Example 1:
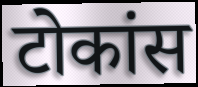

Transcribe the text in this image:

टोकांस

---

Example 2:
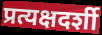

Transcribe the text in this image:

प्रत्यक्षदर्शी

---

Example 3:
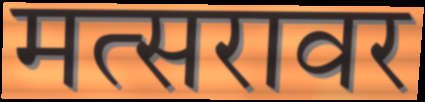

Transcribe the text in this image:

मत्सरावर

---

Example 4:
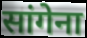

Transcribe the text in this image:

सांगेना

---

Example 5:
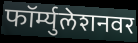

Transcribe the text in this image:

फॉर्म्युलेशनवर